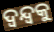
ଦ୍ୱନ୍ଦ୍ୱକୁ